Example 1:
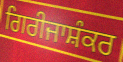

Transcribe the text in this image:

ਗਿਰੀਜਾਸ਼ੰਕਰ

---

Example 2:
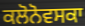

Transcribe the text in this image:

ਕਲੋਨੋਵਸਕਾ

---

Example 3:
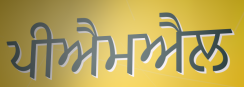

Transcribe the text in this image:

ਪੀਐਮਐਲ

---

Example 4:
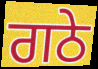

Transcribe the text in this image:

ਗਠੇ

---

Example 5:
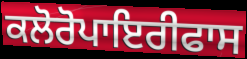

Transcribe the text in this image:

ਕਲੋਰੋਪਾਇਰੀਫਾਸ